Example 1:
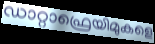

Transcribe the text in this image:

ഡാറ്റാഫ്രെയിമുകളെ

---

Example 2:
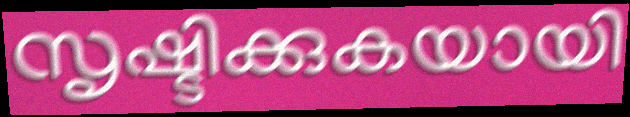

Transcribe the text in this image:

സൃഷ്ടിക്കുകയായി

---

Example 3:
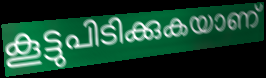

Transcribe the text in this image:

കൂട്ടുപിടിക്കുകയാണ്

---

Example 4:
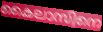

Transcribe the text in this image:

കൈലാസിനെ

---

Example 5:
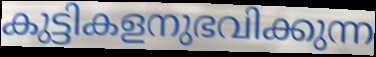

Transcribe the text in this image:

കുട്ടികളനുഭവിക്കുന്ന